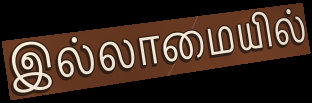
இல்லாமையில்